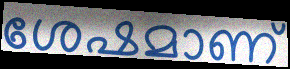
ശേഷമാണ്